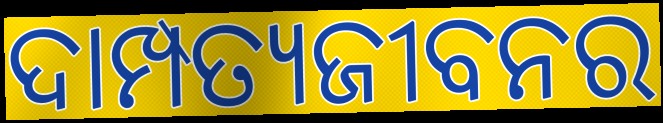
ଦାମ୍ପତ୍ୟଜୀବନର